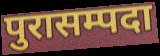
पुरासम्पदा